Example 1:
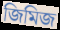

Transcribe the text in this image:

জিমিজ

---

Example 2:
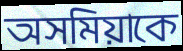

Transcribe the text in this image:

অসমিয়াকে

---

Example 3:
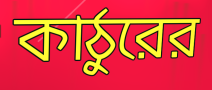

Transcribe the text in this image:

কাঠুরের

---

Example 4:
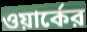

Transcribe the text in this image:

ওয়ার্কের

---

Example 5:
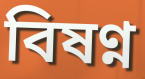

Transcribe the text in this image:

বিষণ্ন